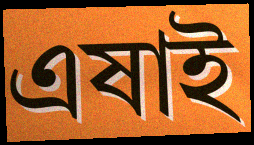
এষাই